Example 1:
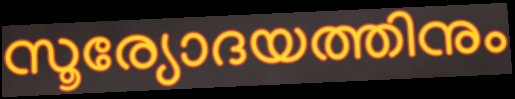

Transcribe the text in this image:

സൂര്യോദയത്തിനും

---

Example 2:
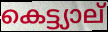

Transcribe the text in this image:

കെട്ട്യാല്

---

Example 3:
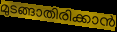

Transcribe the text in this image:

മുടങ്ങാതിരിക്കാൻ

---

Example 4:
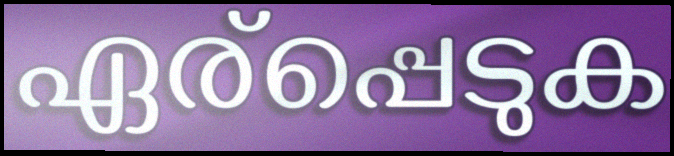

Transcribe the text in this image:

ഏര്പ്പെടുക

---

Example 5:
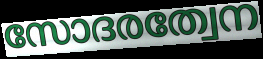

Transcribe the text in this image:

സോദരത്വേന